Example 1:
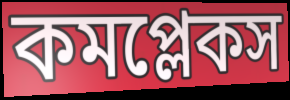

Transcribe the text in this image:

কমপ্লেকস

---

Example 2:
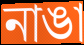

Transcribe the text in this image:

নাঙা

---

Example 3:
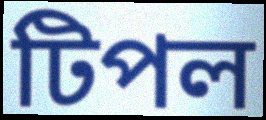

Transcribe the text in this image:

টিপল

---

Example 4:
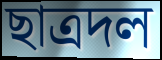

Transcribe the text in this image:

ছাত্রদল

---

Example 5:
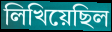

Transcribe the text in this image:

লিখিয়েছিল